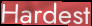
Hardest